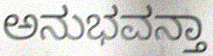
ಅನುಭವನ್ತಾ